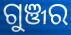
ଗୁଞ୍ଜର